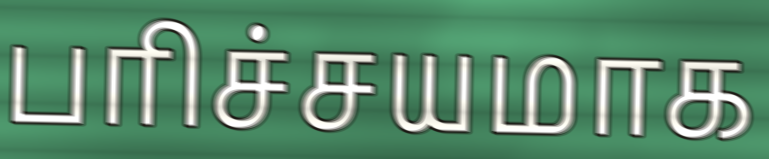
பரிச்சயமாக